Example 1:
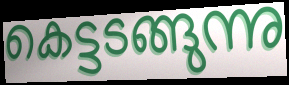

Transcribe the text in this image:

കെട്ടടങ്ങുന്നു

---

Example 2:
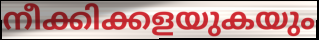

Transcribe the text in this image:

നീക്കിക്കളയുകയും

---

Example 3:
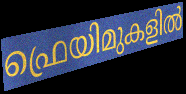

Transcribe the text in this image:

ഫ്രെയിമുകളിൽ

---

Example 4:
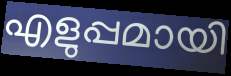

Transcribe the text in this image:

എളുപ്പമായി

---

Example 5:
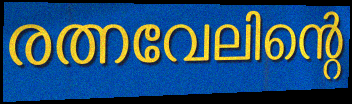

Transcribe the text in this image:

രത്നവേലിന്റെ